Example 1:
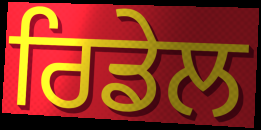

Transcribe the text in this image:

ਰਿਡੇਲ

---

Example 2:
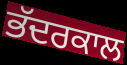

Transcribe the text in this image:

ਭੱਦਰਕਾਲ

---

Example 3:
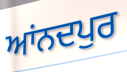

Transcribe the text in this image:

ਆਂਨਦਪੁਰ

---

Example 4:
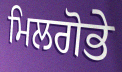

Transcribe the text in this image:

ਮਿਲਗੋਭੇ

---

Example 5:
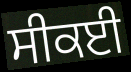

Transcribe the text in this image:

ਸੀਕਈ